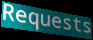
Requests